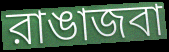
রাঙাজবা